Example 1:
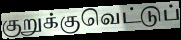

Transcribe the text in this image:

குறுக்குவெட்டுப்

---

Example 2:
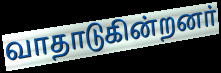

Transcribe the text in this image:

வாதாடுகின்றனர்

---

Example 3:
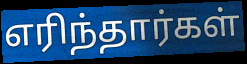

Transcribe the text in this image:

எரிந்தார்கள்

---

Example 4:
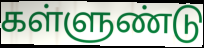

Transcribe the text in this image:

கள்ளுண்டு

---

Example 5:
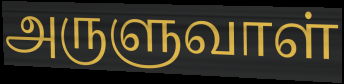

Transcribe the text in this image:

அருளுவாள்